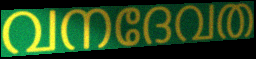
വനദേവത